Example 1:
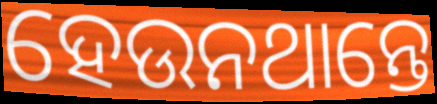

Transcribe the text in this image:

ହେଉନଥାନ୍ତେ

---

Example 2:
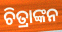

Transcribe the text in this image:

ଚିତ୍ରାଙ୍କନ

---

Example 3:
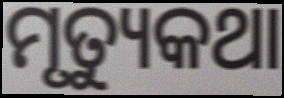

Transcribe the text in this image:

ମୃତ୍ୟୁକଥା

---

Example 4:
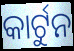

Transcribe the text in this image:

କାର୍ଟୁନ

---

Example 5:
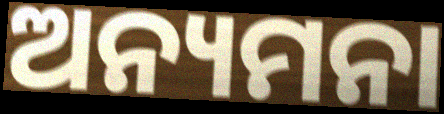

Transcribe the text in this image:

ଅନ୍ୟମନା